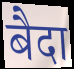
बैदा